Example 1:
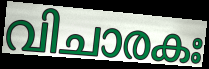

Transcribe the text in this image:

വിചാരകഃ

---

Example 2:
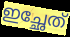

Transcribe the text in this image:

ഇച്ഛേത്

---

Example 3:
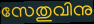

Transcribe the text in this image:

സേതുവിനു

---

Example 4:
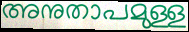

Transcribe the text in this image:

അനുതാപമുള്ള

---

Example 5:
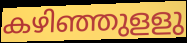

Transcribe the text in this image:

കഴിഞ്ഞുളളു